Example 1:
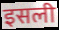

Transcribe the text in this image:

इसली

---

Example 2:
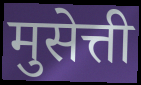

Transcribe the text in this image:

मुसेत्ती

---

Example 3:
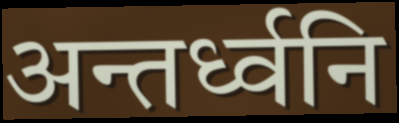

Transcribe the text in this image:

अन्तर्ध्वनि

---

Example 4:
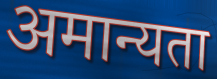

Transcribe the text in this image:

अमान्यता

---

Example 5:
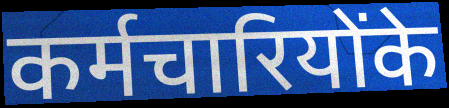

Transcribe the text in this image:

कर्मचारियोंके